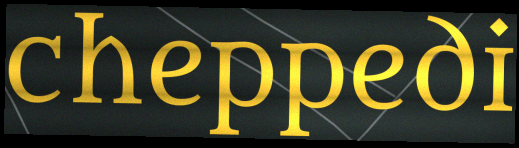
cheppedi